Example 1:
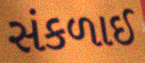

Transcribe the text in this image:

સંકળાઈ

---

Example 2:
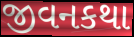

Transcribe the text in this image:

જીવનકથા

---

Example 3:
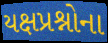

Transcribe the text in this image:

યક્ષપ્રશ્નોના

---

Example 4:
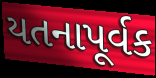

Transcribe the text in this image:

યતનાપૂર્વક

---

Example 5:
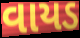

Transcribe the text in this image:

વાયડ